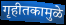
गृहीतकामुळे